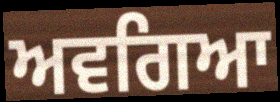
ਅਵਗਿਆ